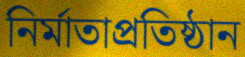
নির্মাতাপ্রতিষ্ঠান